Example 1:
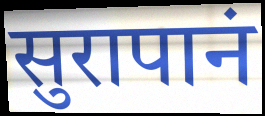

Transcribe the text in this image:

सुरापानं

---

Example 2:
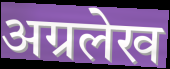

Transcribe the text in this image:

अग्रलेख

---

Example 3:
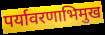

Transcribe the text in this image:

पर्यावरणाभिमुख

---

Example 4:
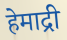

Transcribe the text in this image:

हेमाद्री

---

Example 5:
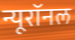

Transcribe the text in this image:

न्यूरॉनल